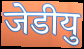
जेडीयु